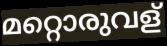
മറ്റൊരുവള്